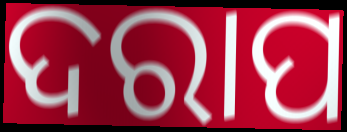
ଦରାପ